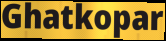
Ghatkopar